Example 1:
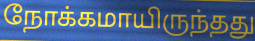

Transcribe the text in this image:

நோக்கமாயிருந்தது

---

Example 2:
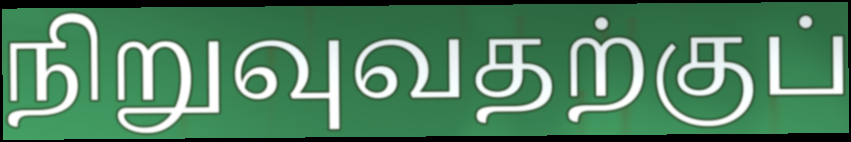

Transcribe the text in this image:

நிறுவுவதற்குப்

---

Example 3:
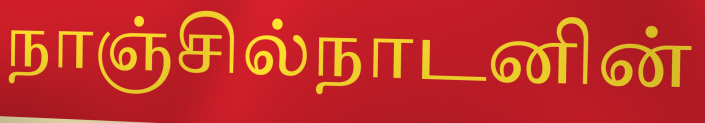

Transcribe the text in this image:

நாஞ்சில்நாடனின்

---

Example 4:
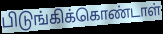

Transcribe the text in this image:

பிடுங்கிக்கொண்டாள்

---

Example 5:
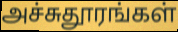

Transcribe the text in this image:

அச்சுதூரங்கள்